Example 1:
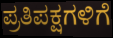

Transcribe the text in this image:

ಪ್ರತಿಪಕ್ಷಗಳಿಗೆ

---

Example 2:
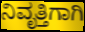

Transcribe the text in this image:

ನಿವೃತ್ತಿಗಾಗಿ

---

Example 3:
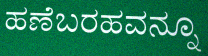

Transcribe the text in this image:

ಹಣೆಬರಹವನ್ನೂ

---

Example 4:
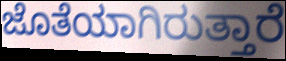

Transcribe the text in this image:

ಜೊತೆಯಾಗಿರುತ್ತಾರೆ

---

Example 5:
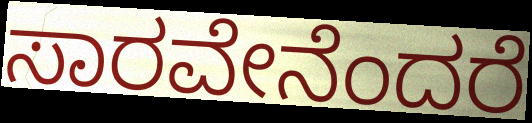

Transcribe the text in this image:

ಸಾರವೇನೆಂದರೆ